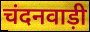
चंदनवाड़ी